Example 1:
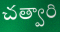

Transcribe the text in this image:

చత్వారి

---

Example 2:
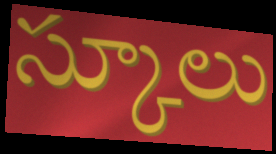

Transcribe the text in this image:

స్కూలు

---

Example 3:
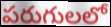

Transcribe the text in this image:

పరుగులలో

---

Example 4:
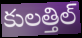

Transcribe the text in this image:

కులత్తిల్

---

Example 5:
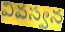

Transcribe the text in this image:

వివస్వన